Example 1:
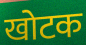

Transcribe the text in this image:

खोटक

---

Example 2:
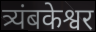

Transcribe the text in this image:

त्र्यंबकेश्वर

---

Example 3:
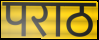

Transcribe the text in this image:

पराठ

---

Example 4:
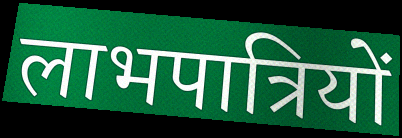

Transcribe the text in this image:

लाभपात्रियों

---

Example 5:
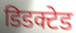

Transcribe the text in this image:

डिडक्टेड